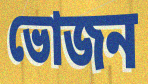
ভোজন